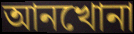
আনখোনা